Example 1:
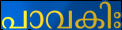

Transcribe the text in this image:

പാവകിഃ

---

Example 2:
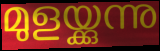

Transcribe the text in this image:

മുളയ്ക്കുന്നു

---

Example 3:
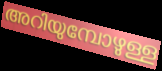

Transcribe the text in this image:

അറിയുമ്പോഴുള്ള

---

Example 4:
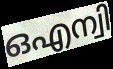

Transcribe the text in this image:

ഒഎന്വി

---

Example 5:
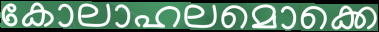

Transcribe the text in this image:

കോലാഹലമൊക്കെ